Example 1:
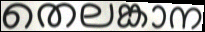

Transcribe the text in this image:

തെലങ്കാന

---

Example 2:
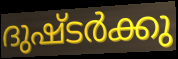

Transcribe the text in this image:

ദുഷ്ടർക്കു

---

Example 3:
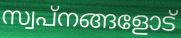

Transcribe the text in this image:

സ്വപ്നങ്ങളോട്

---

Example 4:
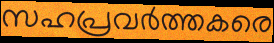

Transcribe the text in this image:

സഹപ്രവർത്തകരെ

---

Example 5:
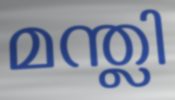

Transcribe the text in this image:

മന്ത്ലി